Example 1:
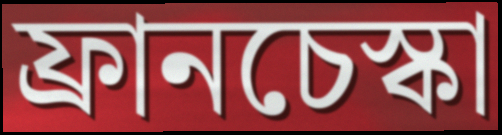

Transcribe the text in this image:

ফ্রানচেস্কা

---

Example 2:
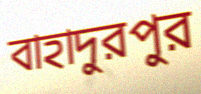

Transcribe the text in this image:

বাহাদুরপুর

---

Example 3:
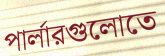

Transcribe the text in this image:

পার্লারগুলোতে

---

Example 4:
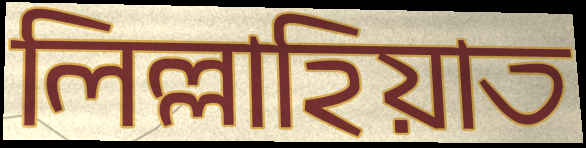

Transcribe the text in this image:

লিল্লাহিয়াত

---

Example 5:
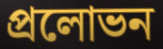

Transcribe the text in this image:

প্রলোভন